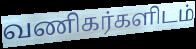
வணிகர்களிடம்